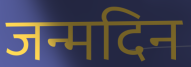
जन्‍मदिन